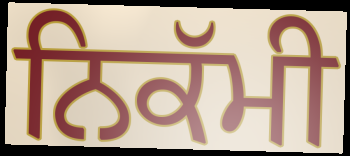
ਨਿਕੱਮੀ